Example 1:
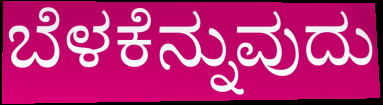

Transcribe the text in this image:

ಬೆಳಕೆನ್ನುವುದು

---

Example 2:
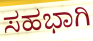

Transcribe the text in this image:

ಸಹಭಾಗಿ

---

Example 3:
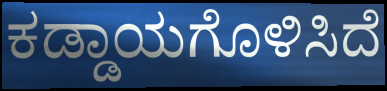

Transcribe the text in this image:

ಕಡ್ಡಾಯಗೊಳಿಸಿದೆ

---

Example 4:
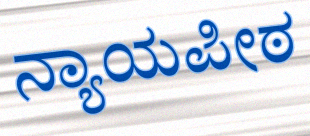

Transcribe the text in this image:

ನ್ಯಾಯಪೀಠ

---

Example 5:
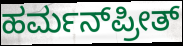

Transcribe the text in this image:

ಹರ್ಮನ್‌ಪ್ರೀತ್